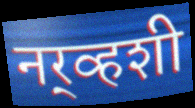
नर्व्हशी